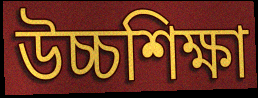
উচ্চশিক্ষা